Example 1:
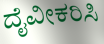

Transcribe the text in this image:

ದೈವೀಕರಿಸಿ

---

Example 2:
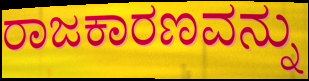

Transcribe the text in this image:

ರಾಜಕಾರಣವನ್ನು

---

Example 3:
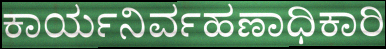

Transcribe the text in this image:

ಕಾರ್ಯನಿರ್ವಹಣಾಧಿಕಾರಿ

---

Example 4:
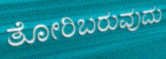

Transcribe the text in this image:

ತೋರಿಬರುವುದು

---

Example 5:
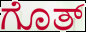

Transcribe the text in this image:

ಗೊತ್